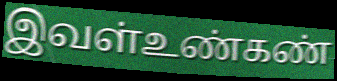
இவள்உண்கண்